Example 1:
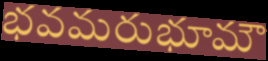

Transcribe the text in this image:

భవమరుభూమౌ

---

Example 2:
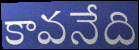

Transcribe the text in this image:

కావనేది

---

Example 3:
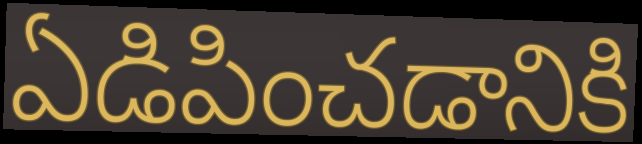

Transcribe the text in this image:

ఏడిపించడానికి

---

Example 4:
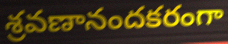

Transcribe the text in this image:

శ్రవణానందకరంగా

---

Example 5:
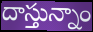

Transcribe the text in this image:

దాస్తున్నాం